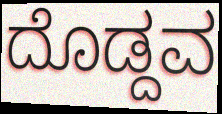
ದೊಡ್ದವ